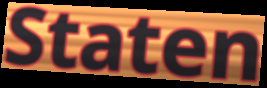
Staten